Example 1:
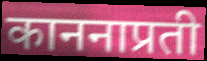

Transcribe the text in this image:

काननाप्रती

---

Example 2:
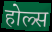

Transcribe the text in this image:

होल्स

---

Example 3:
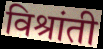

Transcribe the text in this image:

विश्रांती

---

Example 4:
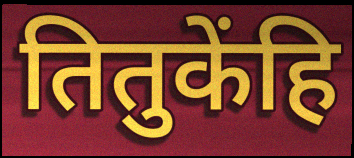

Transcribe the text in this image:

तितुकेंहि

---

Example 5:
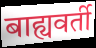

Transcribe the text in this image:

बाह्यवर्ती